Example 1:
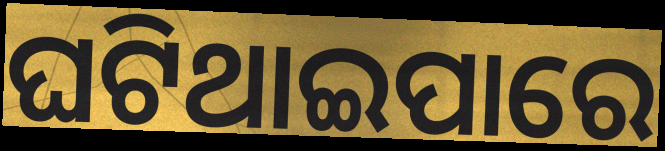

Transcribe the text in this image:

ଘଟିଥାଇପାରେ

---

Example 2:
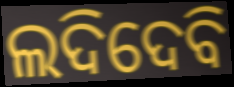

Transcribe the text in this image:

ଲଦିଦେବି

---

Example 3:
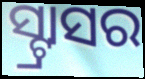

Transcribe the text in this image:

ସ୍ଟ୍ରାସର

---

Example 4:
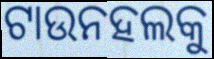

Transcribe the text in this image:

ଟାଉନହଲକୁ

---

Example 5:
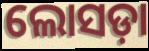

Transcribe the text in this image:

ଲୋସଡ଼ା